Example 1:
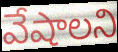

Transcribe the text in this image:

వేషాలని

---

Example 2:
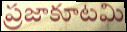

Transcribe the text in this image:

ప్రజాకూటమి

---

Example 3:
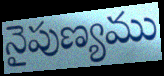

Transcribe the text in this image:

నైపుణ్యము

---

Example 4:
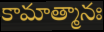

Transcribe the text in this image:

కామాత్మానః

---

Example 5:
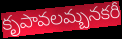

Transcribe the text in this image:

కృపావలమ్బనకరీ